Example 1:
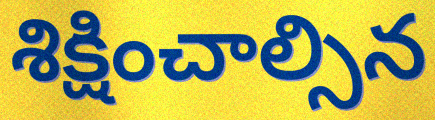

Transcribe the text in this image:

శిక్షించాల్సిన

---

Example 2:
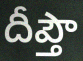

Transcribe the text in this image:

దీప్తౌ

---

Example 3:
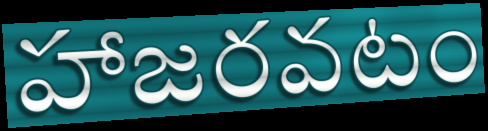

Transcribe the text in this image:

హాజరవటం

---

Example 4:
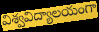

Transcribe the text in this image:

విశ్వవిద్యాలయంగా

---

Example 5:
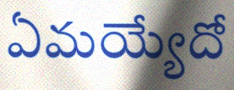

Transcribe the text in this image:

ఏమయ్యేదో